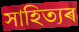
সাহিত্যৰ